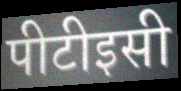
पीटीइसी